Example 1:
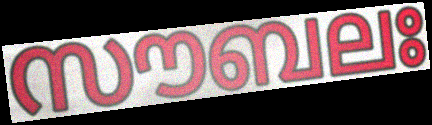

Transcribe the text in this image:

സൗബലഃ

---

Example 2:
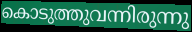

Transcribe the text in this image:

കൊടുത്തുവന്നിരുന്നു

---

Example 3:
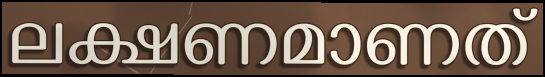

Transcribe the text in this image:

ലക്ഷണമാണത്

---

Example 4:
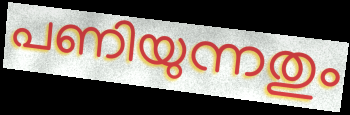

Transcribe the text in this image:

പണിയുന്നതും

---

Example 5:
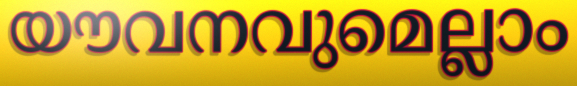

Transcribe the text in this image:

യൗവനവുമെല്ലാം